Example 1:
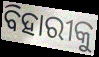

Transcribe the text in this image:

ବିହାରୀକୁ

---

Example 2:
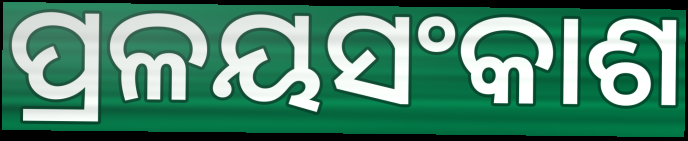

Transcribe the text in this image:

ପ୍ରଳୟସଂକାଶ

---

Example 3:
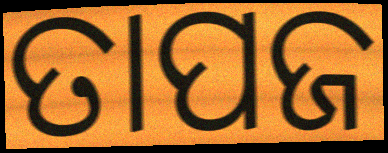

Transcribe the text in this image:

ତାପଜ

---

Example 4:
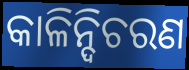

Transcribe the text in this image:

କାଳିନ୍ଦିଚରଣ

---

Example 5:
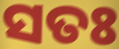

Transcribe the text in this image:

ସତଃ